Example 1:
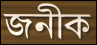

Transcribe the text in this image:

জনীক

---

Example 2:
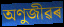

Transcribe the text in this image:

অণুজীৱৰ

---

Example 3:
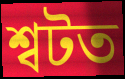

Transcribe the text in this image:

শ্বটত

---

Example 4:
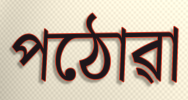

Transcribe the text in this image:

পঠোৱা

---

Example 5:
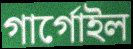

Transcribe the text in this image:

গাৰ্গোইল